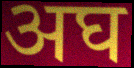
अघ